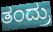
ತಂದ್ರು